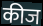
कीज